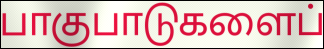
பாகுபாடுகளைப்